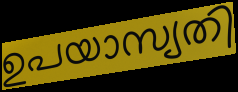
ഉപയാസ്യതി